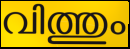
വിത്തും